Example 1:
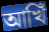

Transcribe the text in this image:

আখিঁ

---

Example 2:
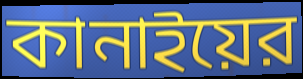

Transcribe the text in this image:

কানাইয়ের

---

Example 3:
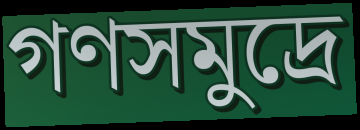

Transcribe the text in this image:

গণসমুদ্রে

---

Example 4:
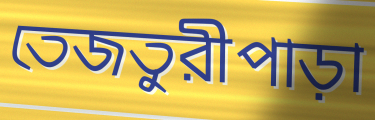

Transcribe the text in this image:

তেজতুরীপাড়া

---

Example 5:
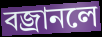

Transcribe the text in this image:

বজ্রানলে